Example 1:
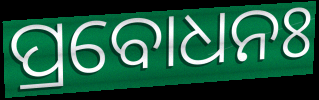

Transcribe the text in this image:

ପ୍ରବୋଧନଃ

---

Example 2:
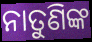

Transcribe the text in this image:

ନାତୁଣିଙ୍କ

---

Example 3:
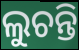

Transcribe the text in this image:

ଲୁଚନ୍ତି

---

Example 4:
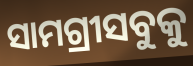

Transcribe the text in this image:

ସାମଗ୍ରୀସବୁକୁ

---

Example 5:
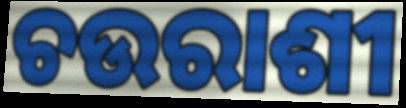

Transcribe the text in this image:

ଚଉରାଶୀ